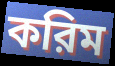
করিম